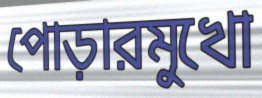
পোড়ারমুখো